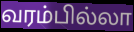
வரம்பில்லா